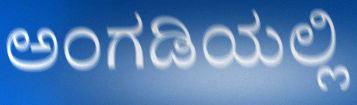
ಅಂಗಡಿಯಲ್ಲಿ